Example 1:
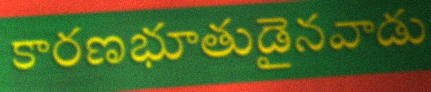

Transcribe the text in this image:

కారణభూతుడైనవాడు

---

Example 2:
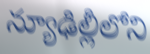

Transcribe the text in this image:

న్యూఢిల్లీలోని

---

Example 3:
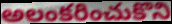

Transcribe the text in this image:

అలంకరించుకొని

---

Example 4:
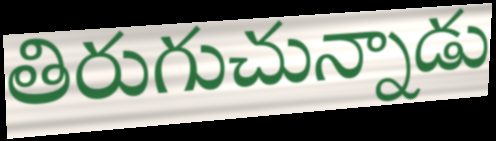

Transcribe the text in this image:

తిరుగుచున్నాడు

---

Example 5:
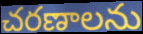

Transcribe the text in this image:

చరణాలను